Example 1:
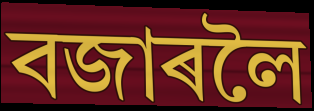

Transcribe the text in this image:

বজাৰলৈ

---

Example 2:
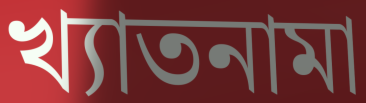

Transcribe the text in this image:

খ্যাতনামা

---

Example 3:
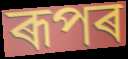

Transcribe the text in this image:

ৰূপৰ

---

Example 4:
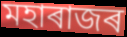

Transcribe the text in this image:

মহাৰাজৰ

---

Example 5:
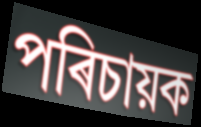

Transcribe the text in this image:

পৰিচায়ক